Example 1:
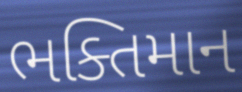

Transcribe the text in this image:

ભક્તિમાન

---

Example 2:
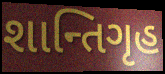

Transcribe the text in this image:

શાન્તિગૃહ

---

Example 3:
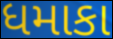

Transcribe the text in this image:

ધમાકા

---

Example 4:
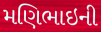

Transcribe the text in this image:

મણિભાઇની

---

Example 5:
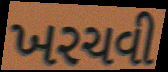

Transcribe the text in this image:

ખરચવી